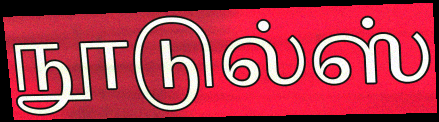
நூடுல்ஸ்